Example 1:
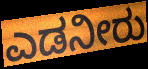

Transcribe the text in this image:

ಎಡನೀರು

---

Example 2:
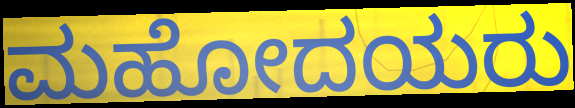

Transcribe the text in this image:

ಮಹೋದಯರು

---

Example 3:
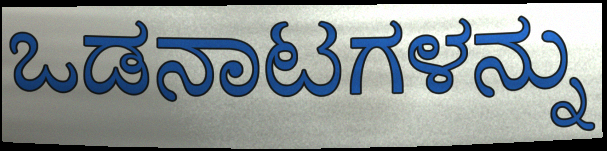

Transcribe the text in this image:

ಒಡನಾಟಗಳನ್ನು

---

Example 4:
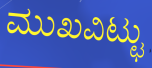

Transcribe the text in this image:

ಮುಖವಿಟ್ಟು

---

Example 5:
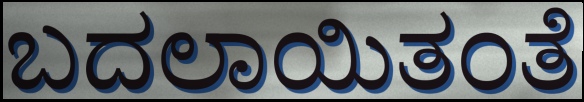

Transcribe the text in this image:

ಬದಲಾಯಿತಂತೆ